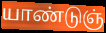
யாண்டுஞ்